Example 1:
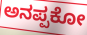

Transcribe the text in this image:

ಅನಪ್ಪಕೋ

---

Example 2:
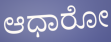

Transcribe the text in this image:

ಆಧಾರೋ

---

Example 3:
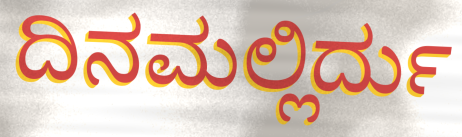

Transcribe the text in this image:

ದಿನಮಲ್ಲಿರ್ದು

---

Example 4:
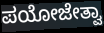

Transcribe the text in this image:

ಪಯೋಜೇತ್ವಾ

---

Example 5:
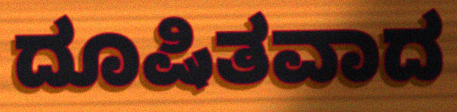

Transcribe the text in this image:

ದೂಷಿತವಾದ